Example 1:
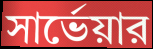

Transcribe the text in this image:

সার্ভেয়ার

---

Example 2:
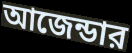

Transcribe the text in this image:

আজেন্ডার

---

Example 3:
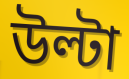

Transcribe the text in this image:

উল্টা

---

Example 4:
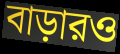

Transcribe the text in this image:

বাড়ারও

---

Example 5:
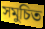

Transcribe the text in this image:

সমুচিত